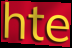
hte